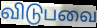
விடுபவை